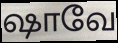
ஷாவே